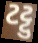
ટટ્ટુ